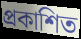
প্রকাশিত